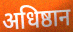
अधिष्ठान